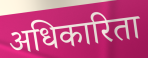
अधिकारिता